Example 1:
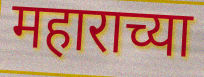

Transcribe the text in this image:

महाराच्या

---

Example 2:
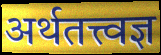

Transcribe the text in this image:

अर्थतत्त्वज्ञ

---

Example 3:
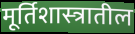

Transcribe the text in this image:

मूर्तिशास्त्रातील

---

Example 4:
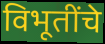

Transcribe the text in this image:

विभूतींचे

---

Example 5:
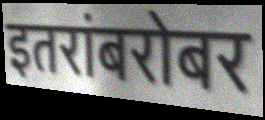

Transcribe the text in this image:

इतरांबरोबर